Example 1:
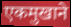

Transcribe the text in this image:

एकमुखाने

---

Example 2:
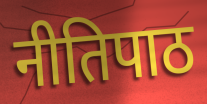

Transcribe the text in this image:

नीतिपाठ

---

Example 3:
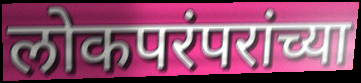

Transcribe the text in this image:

लोकपरंपरांच्या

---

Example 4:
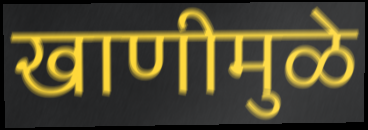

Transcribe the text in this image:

खाणीमुळे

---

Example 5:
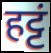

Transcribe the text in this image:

हट्टं